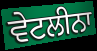
ਵੇਟਲੀਨਾ